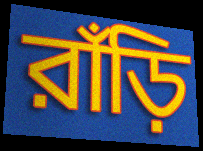
রাঁড়ি